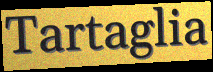
Tartaglia